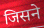
जिसने